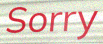
Sorry